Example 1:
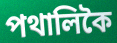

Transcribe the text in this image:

পথালিকৈ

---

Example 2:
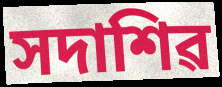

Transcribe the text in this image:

সদাশিৱ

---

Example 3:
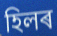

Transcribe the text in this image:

হিলৰ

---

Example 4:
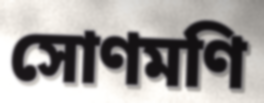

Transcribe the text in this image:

সোণমণি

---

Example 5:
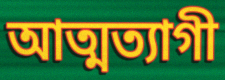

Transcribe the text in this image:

আত্মত্যাগী